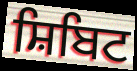
ਸ਼ਿਬਿਟ